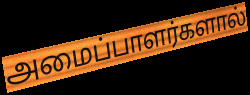
அமைப்பாளர்களால்